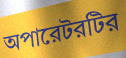
অপারেটরটির